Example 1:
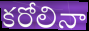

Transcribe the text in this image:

కరోలినా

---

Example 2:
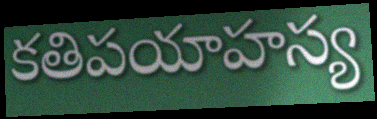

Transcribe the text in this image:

కతిపయాహస్య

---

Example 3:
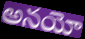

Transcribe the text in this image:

అనయో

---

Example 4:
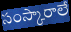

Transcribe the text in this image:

సంస్కారాలే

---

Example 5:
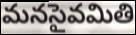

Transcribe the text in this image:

మనసైవమితి